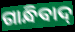
ଗାନ୍ଧିବାଦ୍